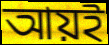
আয়ই